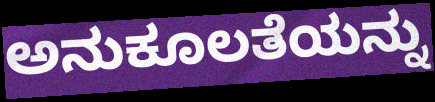
ಅನುಕೂಲತೆಯನ್ನು